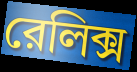
রেলিক্স